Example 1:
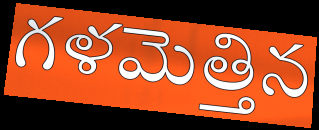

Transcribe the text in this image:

గళమెత్తిన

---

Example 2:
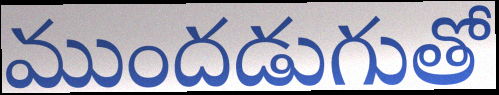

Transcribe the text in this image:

ముందడుగుతో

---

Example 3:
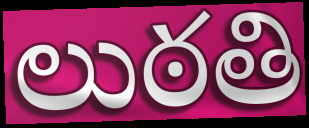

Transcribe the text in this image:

లుఠతి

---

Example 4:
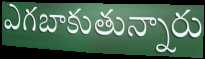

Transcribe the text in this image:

ఎగబాకుతున్నారు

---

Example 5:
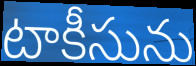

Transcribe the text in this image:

టాకీసును